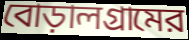
বোড়ালগ্রামের